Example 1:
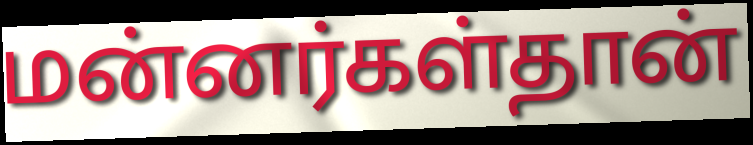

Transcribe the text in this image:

மன்னர்கள்தான்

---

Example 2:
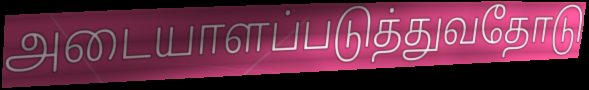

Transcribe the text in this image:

அடையாளப்படுத்துவதோடு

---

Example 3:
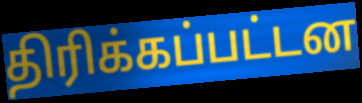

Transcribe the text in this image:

திரிக்கப்பட்டன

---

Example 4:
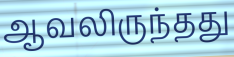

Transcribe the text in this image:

ஆவலிருந்தது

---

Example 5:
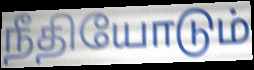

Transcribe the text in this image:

நீதியோடும்